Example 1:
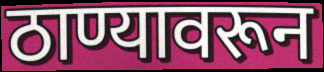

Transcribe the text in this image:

ठाण्यावरून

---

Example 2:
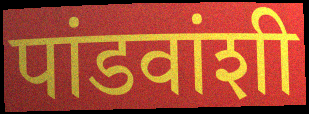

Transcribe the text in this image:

पांडवांशी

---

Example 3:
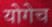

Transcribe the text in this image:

योगेच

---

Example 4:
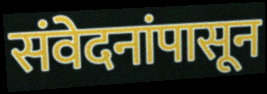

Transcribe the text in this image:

संवेदनांपासून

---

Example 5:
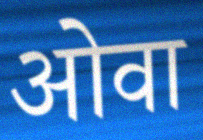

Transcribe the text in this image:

ओवा